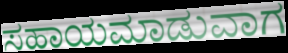
ಸಹಾಯಮಾಡುವಾಗ